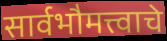
सार्वभौमत्त्वाचे